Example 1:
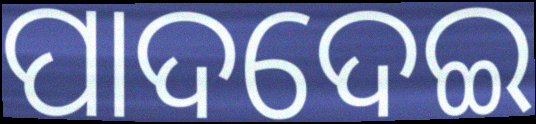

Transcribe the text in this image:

ପାଦଦେଇ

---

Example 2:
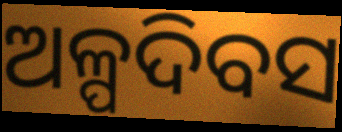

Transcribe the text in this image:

ଅଳ୍ପଦିବସ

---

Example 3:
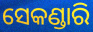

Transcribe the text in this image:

ସେକଣ୍ଡାରି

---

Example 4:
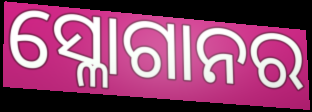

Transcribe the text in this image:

ସ୍ଳୋଗାନର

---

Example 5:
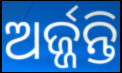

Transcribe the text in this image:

ଅର୍ଜ୍ଜନ୍ତି